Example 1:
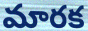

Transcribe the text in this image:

మారక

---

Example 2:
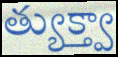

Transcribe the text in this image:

త్యుక్త్వా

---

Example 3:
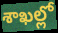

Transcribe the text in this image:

శాఖల్లో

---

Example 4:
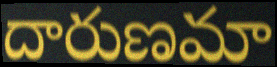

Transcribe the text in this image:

దారుణమా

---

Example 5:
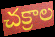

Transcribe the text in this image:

చక్రాల